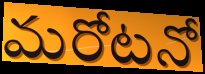
మరోటనో